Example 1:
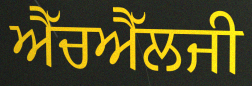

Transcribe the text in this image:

ਐੱਚਐੱਲਜੀ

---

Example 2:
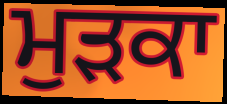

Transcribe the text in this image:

ਮੁੜਕਾ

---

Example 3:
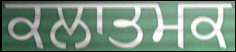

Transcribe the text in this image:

ਕਲਾਤਮਕ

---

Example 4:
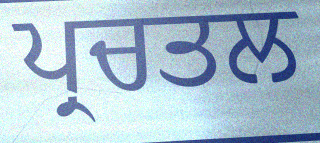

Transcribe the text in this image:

ਪ੍ਰਚਤਲ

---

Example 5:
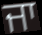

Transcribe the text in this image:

ਜਾ